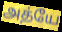
அத்யே